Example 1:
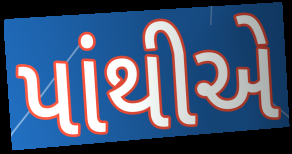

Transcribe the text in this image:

પાંથીએ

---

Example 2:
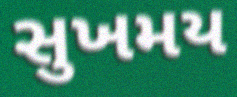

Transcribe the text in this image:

સુખમય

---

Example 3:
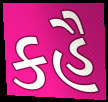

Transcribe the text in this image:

કહૈ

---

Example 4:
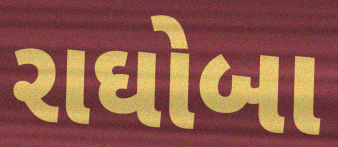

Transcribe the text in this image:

રાઘોબા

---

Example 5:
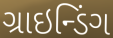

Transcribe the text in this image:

ગ્રાઇન્ડિંગ